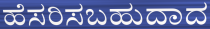
ಹೆಸರಿಸಬಹುದಾದ